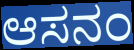
ಆಸನಂ